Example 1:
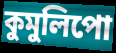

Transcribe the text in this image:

কুমুলিপো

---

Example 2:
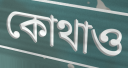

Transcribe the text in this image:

কোথাও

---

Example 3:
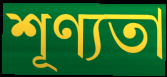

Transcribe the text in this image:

শূণ্যতা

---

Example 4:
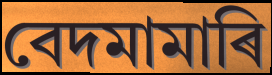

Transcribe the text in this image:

বেদমামাৰি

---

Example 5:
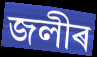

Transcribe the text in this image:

জলীৰ